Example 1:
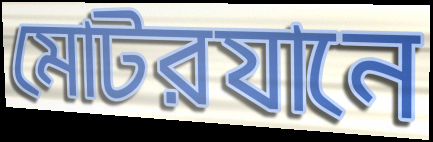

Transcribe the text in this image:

মোটরযানে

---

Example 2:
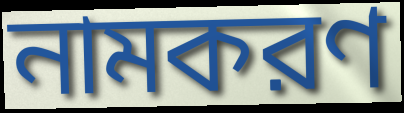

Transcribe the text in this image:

নামকরণ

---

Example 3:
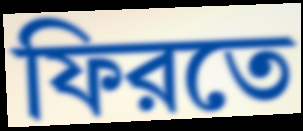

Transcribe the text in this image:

ফিরতে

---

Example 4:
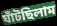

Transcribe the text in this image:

ঘাঁটছিলাম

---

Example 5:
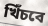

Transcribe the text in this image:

খিঁচবে